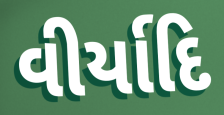
વીર્યાદિ